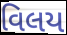
વિલય